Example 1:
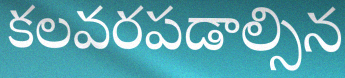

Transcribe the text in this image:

కలవరపడాల్సిన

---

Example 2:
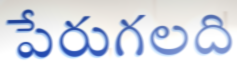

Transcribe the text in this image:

పేరుగలది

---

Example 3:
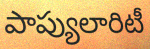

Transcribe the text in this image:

పాప్యులారిటీ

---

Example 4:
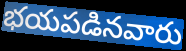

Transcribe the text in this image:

భయపడినవారు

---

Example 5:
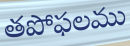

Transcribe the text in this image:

తపోఫలము